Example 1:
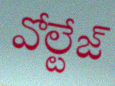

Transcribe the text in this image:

వోల్టేజ్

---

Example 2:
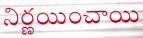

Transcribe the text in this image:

నిర్ణయించాయి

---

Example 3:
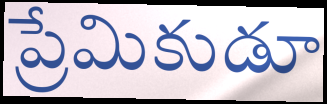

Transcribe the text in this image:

ప్రేమికుడూ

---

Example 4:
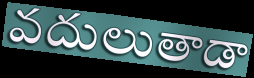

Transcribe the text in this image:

వదులుతాడా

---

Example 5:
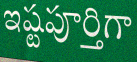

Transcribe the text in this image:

ఇష్టపూర్తిగా